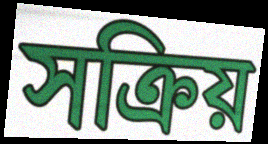
সক্ৰিয়